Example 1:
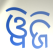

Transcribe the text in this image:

ୱିଜି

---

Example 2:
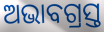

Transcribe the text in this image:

ଅଭାବଗ୍ରସ୍ତ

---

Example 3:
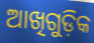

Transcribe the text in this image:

ଆଖିଗୁଡ଼ିକ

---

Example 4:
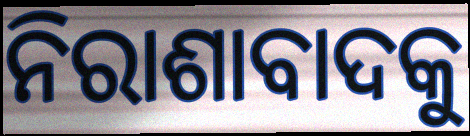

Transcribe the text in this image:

ନିରାଶାବାଦକୁ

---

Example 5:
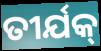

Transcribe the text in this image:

ତୀର୍ଯକ୍